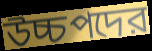
উচ্চপদের